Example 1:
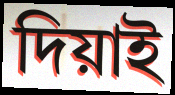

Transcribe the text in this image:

দিয়াই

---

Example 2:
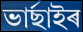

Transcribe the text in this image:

ভাৰ্ছাইৰ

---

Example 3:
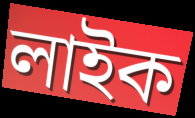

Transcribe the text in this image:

লাইক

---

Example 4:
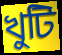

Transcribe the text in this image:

খুটি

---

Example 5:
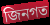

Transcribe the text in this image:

জিনগত